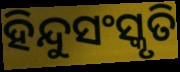
ହିନ୍ଦୁସଂସ୍କୃତି